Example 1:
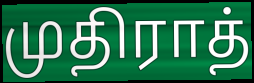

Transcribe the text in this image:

முதிராத்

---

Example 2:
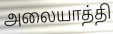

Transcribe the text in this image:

அலையாத்தி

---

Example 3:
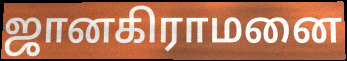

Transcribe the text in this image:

ஜானகிராமனை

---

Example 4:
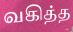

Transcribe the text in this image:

வகித்த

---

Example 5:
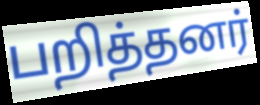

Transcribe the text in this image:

பறித்தனர்